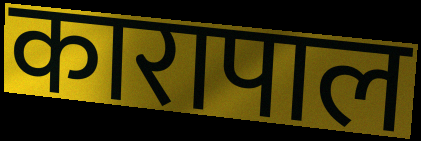
कारापाल